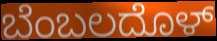
ಬೆಂಬಲದೊಳ್